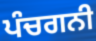
ਪੰਚਗਨੀ